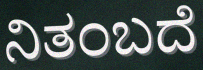
ನಿತಂಬದೆ